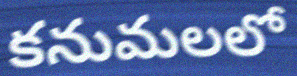
కనుమలలో